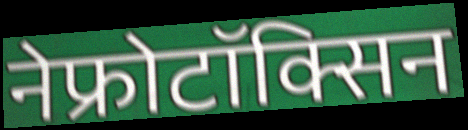
नेफ्रोटॉक्सिन